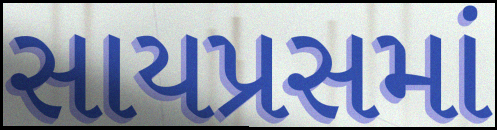
સાયપ્રસમાં